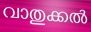
വാതുക്കൽ